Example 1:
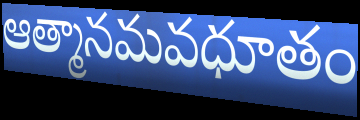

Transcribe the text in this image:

ఆత్మానమవధూతం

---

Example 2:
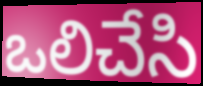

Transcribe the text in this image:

ఒలిచేసి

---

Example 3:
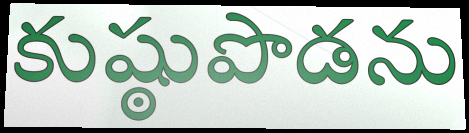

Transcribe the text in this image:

కుష్ఠుపొడను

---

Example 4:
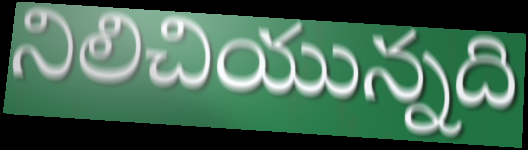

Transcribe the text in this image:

నిలిచియున్నది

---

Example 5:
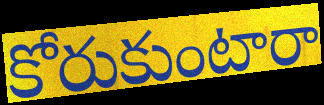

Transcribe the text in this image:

కోరుకుంటారా